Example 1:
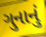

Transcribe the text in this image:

ગુનાનું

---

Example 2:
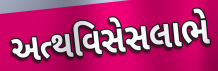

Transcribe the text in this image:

અત્થવિસેસલાભે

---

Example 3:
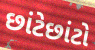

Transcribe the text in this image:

છાંટેછાંટો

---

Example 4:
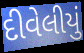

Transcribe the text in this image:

દીવેલીયું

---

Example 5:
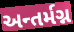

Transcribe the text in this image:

અન્તર્મગ્ન